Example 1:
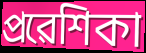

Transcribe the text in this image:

প্ৰৱেশিকা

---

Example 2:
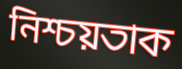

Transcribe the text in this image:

নিশ্চয়তাক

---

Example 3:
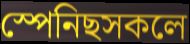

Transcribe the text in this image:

স্পেনিছসকলে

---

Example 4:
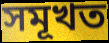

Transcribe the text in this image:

সমূখত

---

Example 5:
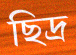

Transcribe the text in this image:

ছিদ্ৰ